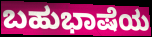
ಬಹುಭಾಷೆಯ